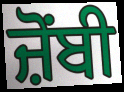
ਜ਼ੋਂਬੀ